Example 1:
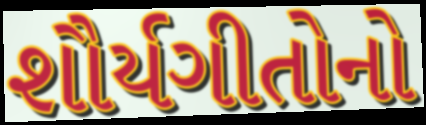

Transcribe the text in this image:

શૌર્યગીતોનો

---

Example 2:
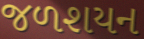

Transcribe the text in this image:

જળશયન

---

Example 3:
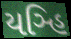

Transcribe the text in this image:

યઞ્હિ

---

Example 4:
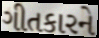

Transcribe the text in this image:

ગીતકારને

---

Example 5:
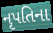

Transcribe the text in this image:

નૃપતિના